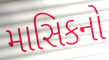
માસિકનો